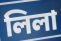
লিলা